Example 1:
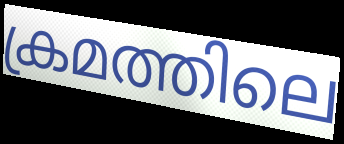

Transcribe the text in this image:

ക്രമത്തിലെ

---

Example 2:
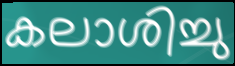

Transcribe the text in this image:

കലാശിച്ചു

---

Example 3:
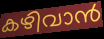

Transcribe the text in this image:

കഴിവാൻ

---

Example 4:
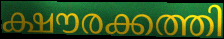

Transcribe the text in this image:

ക്ഷൗരക്കത്തി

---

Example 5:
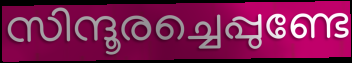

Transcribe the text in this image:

സിന്ദൂരച്ചെപ്പുണ്ടേ